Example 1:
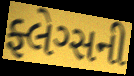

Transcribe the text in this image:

ફ્લેગ્સની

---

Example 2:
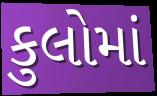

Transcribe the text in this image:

કુલોમાં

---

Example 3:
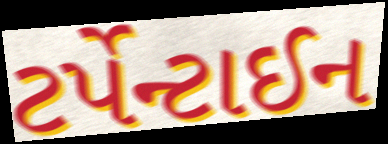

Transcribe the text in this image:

ટર્પેન્ટાઈન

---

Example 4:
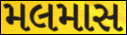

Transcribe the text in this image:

મલમાસ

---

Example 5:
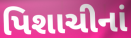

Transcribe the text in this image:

પિશાચીનાં